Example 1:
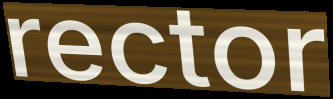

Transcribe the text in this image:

rector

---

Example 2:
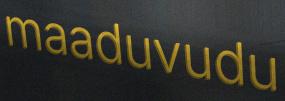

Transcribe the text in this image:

maaduvudu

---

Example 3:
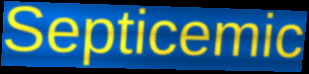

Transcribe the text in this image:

Septicemic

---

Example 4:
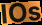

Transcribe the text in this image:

IOs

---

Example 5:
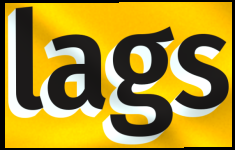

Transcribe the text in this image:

lags